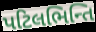
પટિલભિન્તિ